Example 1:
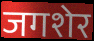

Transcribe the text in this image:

जगशेर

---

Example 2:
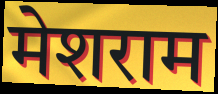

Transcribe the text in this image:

मेशराम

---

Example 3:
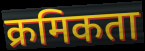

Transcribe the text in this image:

क्रमिकता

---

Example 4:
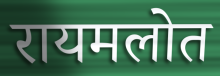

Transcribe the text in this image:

रायमलोत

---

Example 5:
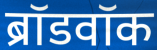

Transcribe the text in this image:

ब्रॉडवॉक